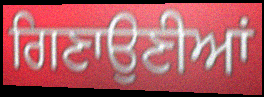
ਗਿਣਾਉਣੀਆਂ